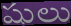
షులు